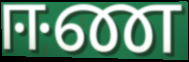
ஈண